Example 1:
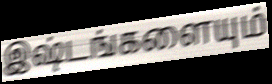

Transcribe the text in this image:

இஷ்டங்களையும்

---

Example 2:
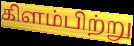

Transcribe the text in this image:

கிளம்பிற்று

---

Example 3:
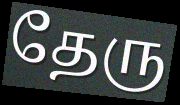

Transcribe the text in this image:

தேரு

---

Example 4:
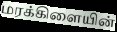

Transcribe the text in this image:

மரக்கிளையின்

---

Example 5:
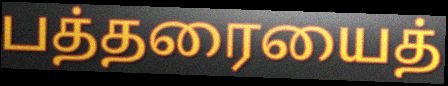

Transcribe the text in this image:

பத்தரையைத்